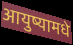
आयुष्यामधे